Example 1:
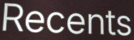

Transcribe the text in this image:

Recents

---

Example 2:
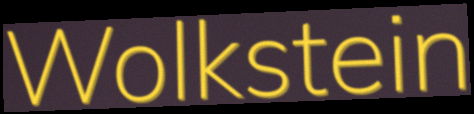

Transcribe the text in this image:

Wolkstein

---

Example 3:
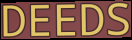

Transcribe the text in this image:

DEEDS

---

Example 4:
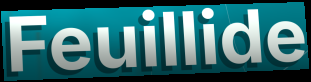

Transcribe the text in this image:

Feuillide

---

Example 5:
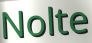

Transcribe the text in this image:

Nolte